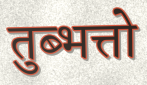
तुब्भत्तो